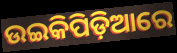
ଉଇକିପିଡ଼ିଆରେ